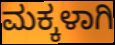
ಮಕ್ಕಳಾಗಿ